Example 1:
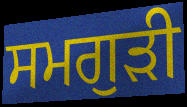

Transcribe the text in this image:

ਸਮਗੁੜੀ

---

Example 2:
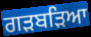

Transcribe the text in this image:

ਗੜਬੜਿਆ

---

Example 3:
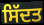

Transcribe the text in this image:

ਸਿੱਦਤ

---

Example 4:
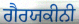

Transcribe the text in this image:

ਗੈਰਯਕੀਨੀ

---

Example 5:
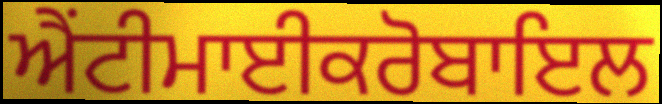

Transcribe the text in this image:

ਐਂਟੀਮਾਈਕਰੋਬਾਇਲ